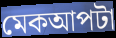
মেকআপটা